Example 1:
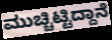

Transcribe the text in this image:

ಮುಚ್ಚಿಟ್ಟಿದ್ದಾನೆ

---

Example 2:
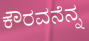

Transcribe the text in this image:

ಕೌರವನೆನ್ನ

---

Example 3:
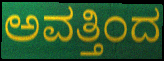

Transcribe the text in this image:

ಅವತ್ತಿಂದ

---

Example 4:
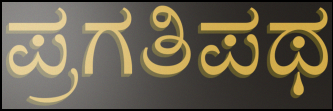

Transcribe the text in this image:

ಪ್ರಗತಿಪಥ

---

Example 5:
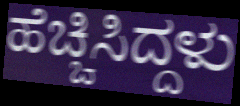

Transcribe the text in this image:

ಹೆಚ್ಚಿಸಿದ್ದಳು